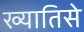
ख्यातिसे